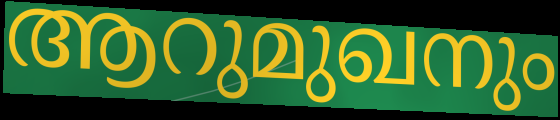
ആറുമുഖനും